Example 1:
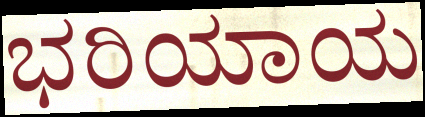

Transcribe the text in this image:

ಭರಿಯಾಯ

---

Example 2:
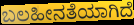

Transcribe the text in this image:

ಬಲಹೀನತೆಯಾಗಿದೆ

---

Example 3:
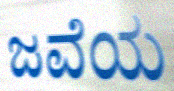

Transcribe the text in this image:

ಜವೆಯ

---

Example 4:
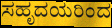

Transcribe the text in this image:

ಸಹೃದಯರಿಂದ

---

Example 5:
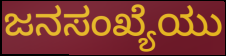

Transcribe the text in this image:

ಜನಸಂಖ್ಯೆಯು